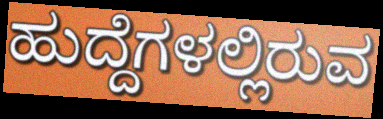
ಹುದ್ದೆಗಳಲ್ಲಿರುವ